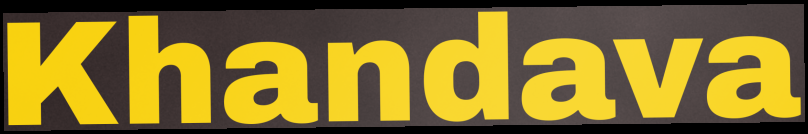
Khandava